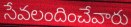
సేవలందించేవారు